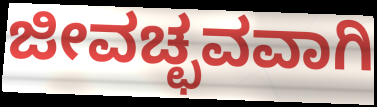
ಜೀವಚ್ಛವವಾಗಿ